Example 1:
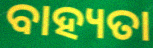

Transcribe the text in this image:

ବାହ୍ୟତା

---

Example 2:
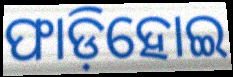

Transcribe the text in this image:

ଫାଡ଼ିହୋଇ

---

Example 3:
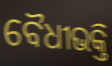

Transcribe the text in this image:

ବୈଧୀଭକ୍ତି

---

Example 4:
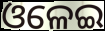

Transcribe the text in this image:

ଓଳେଇ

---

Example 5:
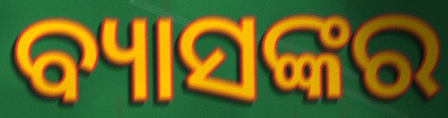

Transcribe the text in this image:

ବ୍ୟାସଙ୍କର